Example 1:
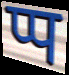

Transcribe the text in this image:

प्प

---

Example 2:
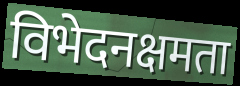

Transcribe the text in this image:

विभेदनक्षमता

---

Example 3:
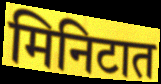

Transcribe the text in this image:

मिनिटात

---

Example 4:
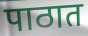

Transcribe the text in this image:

पाठात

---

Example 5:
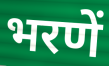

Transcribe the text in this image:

भरणें